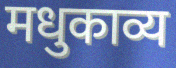
मधुकाव्य